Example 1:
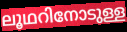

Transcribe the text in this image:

ലൂഥറിനോടുള്ള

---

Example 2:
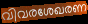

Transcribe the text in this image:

വിവരശേഖരണ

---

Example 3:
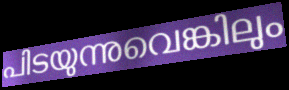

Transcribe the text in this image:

പിടയുന്നുവെങ്കിലും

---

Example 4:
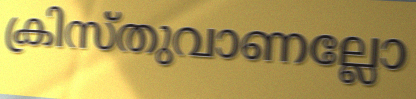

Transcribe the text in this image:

ക്രിസ്തുവാണല്ലോ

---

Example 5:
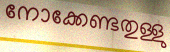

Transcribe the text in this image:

നോക്കേണ്ടതുള്ളു